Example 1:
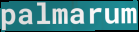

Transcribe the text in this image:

palmarum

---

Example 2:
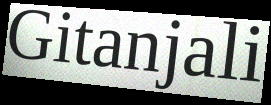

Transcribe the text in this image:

Gitanjali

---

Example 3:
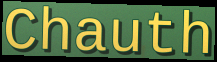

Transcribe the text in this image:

Chauth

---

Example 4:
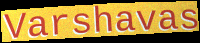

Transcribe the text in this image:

Varshavas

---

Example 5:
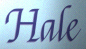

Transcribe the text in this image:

Hale